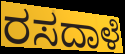
ರಸದಾಳೆ